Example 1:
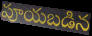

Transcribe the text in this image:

పూయబడిన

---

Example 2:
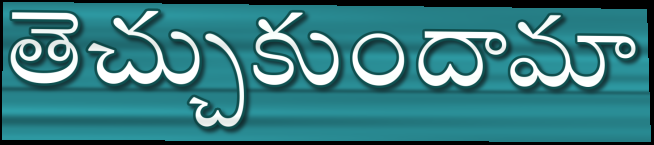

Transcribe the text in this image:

తెచ్చుకుందామా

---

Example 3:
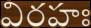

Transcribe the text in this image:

విరహః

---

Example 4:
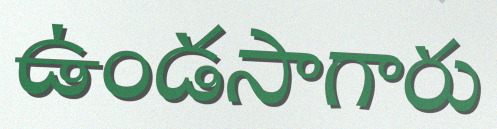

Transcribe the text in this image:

ఉండసాగారు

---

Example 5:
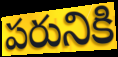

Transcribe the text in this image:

పరునికి